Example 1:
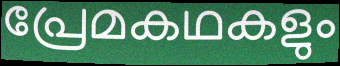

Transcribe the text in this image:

പ്രേമകഥകളും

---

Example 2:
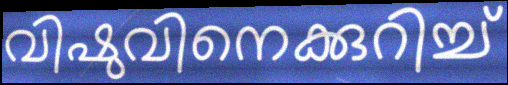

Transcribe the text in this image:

വിഷുവിനെക്കുറിച്ച്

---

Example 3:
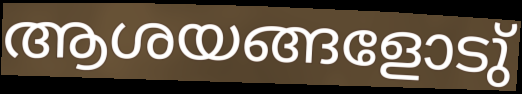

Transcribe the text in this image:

ആശയങ്ങളോടു്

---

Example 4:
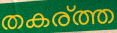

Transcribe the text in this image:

തകര്ത്ത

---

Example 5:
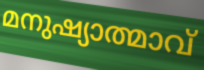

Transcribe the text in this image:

മനുഷ്യാത്മാവ്